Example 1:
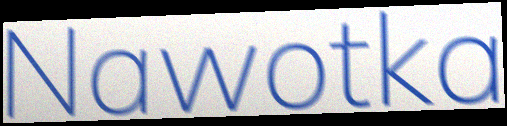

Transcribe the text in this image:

Nawotka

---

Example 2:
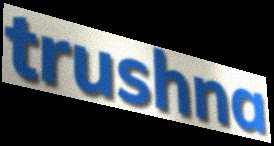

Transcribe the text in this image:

trushna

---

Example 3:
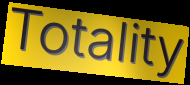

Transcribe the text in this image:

Totality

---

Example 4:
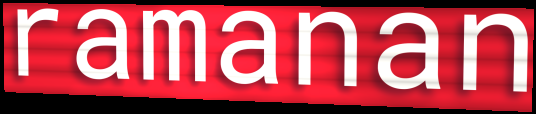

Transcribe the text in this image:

ramanan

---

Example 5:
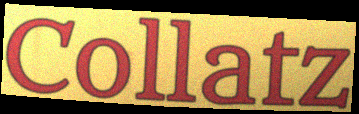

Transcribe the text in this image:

Collatz